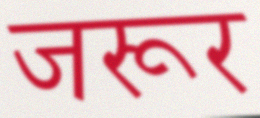
जरूर